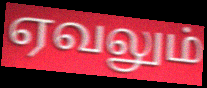
ஏவலும்